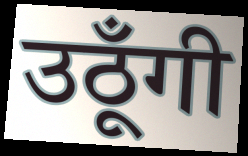
उठूँगी